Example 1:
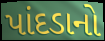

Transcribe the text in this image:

પાંદડાનો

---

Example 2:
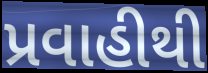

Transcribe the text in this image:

પ્રવાહીથી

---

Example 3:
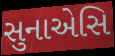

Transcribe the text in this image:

સુનાએસિ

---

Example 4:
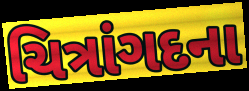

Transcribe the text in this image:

ચિત્રાંગદના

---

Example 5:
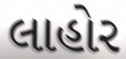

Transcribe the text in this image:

લાહોર